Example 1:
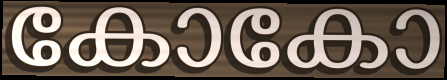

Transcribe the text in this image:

കോകോ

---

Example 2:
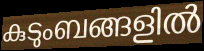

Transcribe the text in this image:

കുടുംബങ്ങളിൽ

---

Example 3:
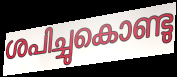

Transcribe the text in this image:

ശപിച്ചുകൊണ്ടു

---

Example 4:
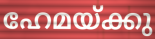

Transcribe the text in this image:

ഹേമയ്ക്കു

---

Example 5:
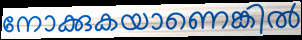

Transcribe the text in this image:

നോക്കുകയാണെങ്കിൽ